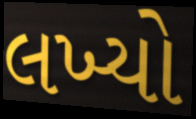
લખ્યો